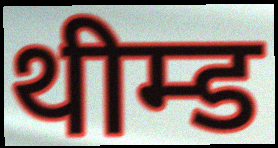
थीम्ड